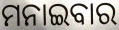
ମନାଇବାର